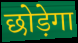
छोड़ेगा